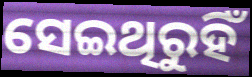
ସେଇଥିରୁହିଁ